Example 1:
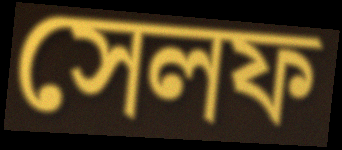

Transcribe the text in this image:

সেলফ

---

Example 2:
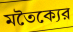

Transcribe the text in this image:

মতৈক্যের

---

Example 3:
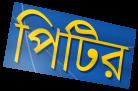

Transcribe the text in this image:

পিটির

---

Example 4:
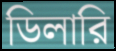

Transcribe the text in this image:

ডিলারি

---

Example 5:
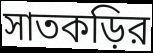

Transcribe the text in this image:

সাতকড়ির